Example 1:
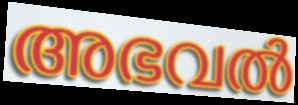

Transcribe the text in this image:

അഭവൽ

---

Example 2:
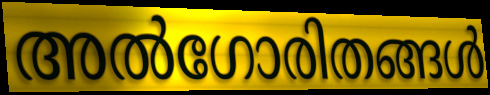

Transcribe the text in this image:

അൽഗോരിതങ്ങൾ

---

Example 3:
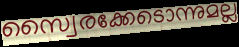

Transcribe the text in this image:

സ്വൈരക്കേടൊന്നുമല്ല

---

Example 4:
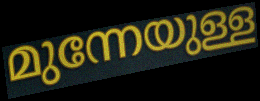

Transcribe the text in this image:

മുന്നേയുള്ള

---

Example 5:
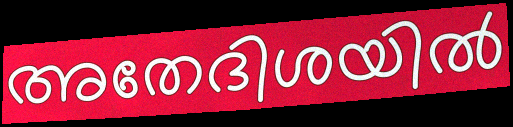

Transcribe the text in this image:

അതേദിശയിൽ